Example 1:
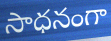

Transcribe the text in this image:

సాధనంగా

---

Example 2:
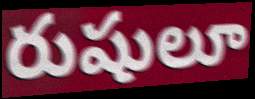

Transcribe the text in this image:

రుషులూ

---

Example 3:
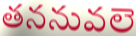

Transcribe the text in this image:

తననువలె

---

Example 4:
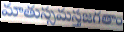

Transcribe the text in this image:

మాతుస్సమస్తజగతాం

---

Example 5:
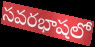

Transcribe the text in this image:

సవరభాషలో